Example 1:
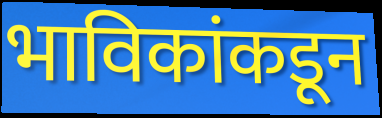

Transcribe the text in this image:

भाविकांकडून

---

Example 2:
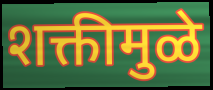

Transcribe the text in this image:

शक्तीमुळे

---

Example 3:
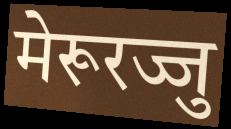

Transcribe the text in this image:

मेरूरज्जु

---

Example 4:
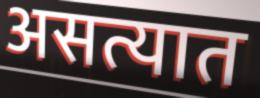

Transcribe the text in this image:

असत्यात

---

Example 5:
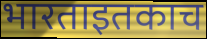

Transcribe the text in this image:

भारताइतकाच